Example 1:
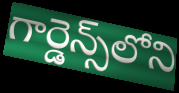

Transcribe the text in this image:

గార్డెన్స్‌లోని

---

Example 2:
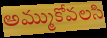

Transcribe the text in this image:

అమ్ముకోవలసి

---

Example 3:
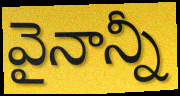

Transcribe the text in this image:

వైనాన్నీ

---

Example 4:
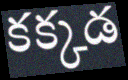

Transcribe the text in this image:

కక్కడ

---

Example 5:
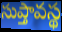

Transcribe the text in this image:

సుప్తావస్థ